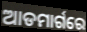
ଆଡମାର୍ଗରେ